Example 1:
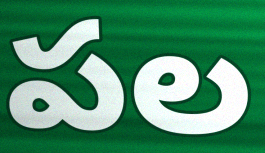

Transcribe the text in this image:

పల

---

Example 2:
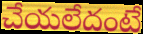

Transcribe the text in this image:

చేయలేదంటే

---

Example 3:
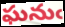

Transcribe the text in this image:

ఘనుఁ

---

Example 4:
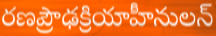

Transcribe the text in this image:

రణప్రౌఢక్రియాహీనులన్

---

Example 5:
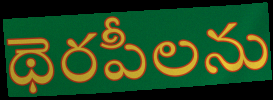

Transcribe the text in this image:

థెరపీలను